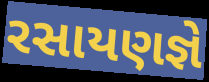
રસાયણજ્ઞે